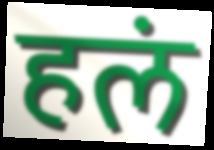
हलं